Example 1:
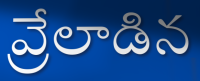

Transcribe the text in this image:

వ్రేలాడిన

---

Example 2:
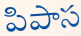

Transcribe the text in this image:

పిపాస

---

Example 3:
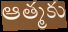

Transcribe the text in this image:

ఆత్మకు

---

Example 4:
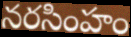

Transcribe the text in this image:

నరసింహం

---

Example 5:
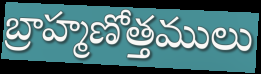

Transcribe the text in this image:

బ్రాహ్మణోత్తములు